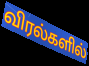
விரல்களில்